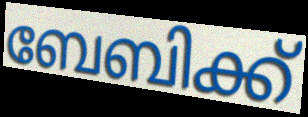
ബേബിക്ക്